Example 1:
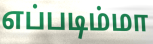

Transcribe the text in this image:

எப்படிம்மா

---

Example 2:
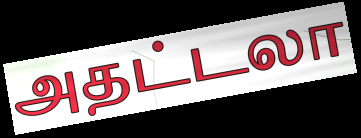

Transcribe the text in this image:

அதட்டலா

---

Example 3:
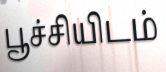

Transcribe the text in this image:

பூச்சியிடம்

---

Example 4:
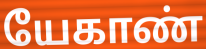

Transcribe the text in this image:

யேகாண்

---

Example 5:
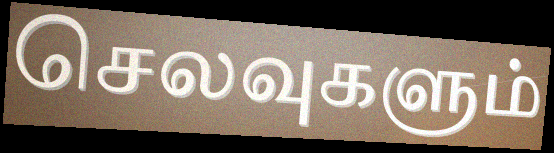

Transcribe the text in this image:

செலவுகளும்